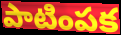
పాటింపక